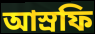
আস্রফি